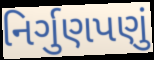
નિર્ગુણપણું